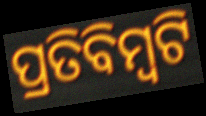
ପ୍ରତିବିମ୍ବଟି